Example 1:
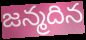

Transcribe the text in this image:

జన్మదిన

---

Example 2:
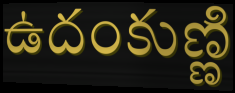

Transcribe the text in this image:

ఉదంకుణ్ణి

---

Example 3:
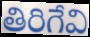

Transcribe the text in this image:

తిరిగేవి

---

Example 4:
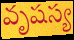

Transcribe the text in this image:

వృషస్య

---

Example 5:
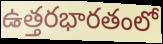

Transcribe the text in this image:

ఉత్తరభారతంలో